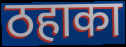
ठहाका